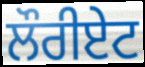
ਲੌਰੀਏਟ